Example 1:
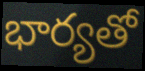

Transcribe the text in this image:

భార్యతో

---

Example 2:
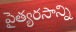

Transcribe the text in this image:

పైత్యరసాన్ని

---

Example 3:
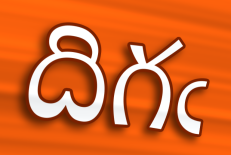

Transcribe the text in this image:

దిగఁ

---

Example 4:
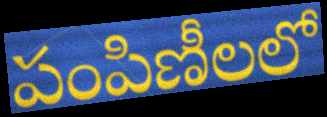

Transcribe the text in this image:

పంపిణీలలో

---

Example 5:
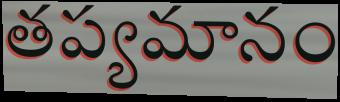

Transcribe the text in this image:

తప్యమానం